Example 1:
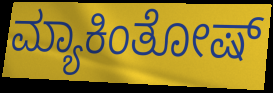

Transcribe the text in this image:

ಮ್ಯಾಕಿಂತೋಷ್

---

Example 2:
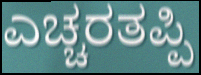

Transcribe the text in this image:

ಎಚ್ಚರತಪ್ಪಿ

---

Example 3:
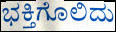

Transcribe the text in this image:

ಭಕ್ತಿಗೊಲಿದು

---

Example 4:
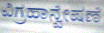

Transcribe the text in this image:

ವಿಗ್ರಹಾನ್ವೇಷಣೆ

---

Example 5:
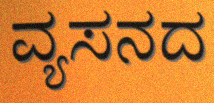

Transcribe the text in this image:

ವ್ಯಸನದ